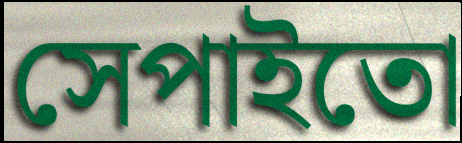
সেপাইতো